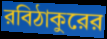
রবিঠাকুরের